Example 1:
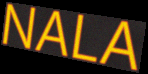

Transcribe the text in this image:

NALA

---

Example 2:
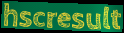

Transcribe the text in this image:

hscresult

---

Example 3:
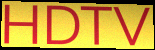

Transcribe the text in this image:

HDTV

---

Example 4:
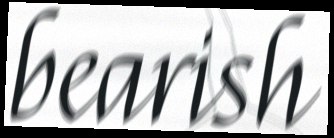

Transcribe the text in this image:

bearish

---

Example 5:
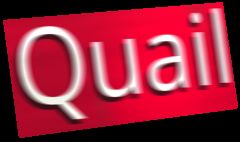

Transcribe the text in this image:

Quail